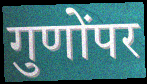
गुणोंपर